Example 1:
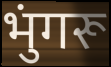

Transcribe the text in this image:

भुंगरू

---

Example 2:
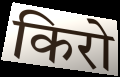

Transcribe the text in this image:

किरो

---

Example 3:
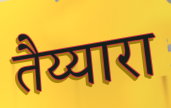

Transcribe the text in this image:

तैय्यारा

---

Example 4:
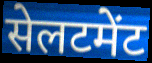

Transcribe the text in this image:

सेलटमेंट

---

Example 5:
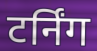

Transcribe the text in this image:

टर्निंग